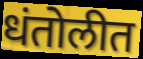
धंतोलीत